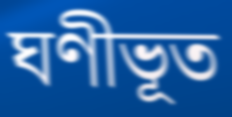
ঘণীভূত